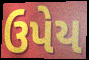
ઉપેય